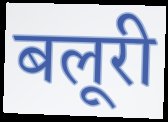
बलूरी